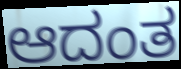
ಆದಂತ